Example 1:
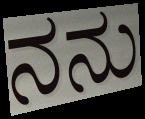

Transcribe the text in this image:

ನನು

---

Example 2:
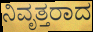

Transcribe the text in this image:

ನಿವೃತ್ತರಾದ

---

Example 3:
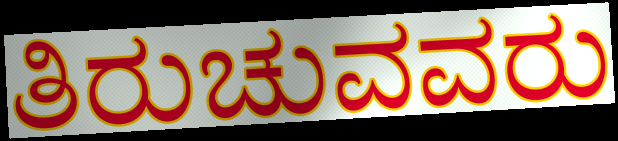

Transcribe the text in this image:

ತಿರುಚುವವರು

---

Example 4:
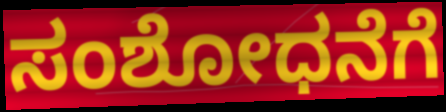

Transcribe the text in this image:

ಸಂಶೋಧನೆಗೆ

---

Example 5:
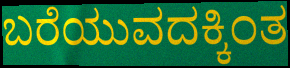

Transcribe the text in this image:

ಬರೆಯುವದಕ್ಕಿಂತ